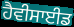
ਹੈਵੀਸਾਈਡ